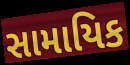
સામાયિક